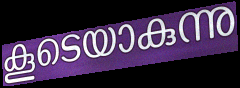
കൂടെയാകുന്നു